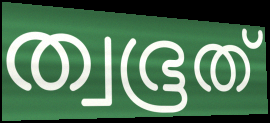
ത്വഭൂത്